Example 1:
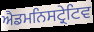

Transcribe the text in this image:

ਐਡਮਨਿਸਟ੍ਰੇਟਿਵ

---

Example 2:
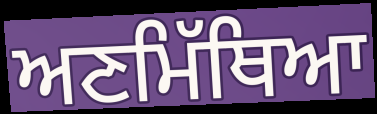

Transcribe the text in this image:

ਅਣਮਿੱਥਿਆ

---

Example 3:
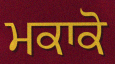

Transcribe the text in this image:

ਮਕਾਕੋ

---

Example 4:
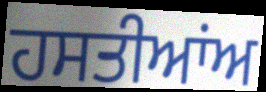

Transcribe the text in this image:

ਹਸਤੀਆਂਅ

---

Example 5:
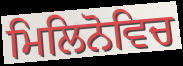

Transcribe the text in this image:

ਮਿਲਿਨੋਵਿਚ